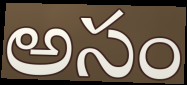
అసం